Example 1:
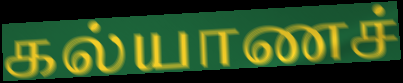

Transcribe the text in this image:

கல்யாணச்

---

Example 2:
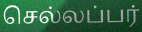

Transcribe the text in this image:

செல்லப்பர்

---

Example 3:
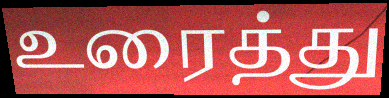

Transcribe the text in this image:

உரைத்து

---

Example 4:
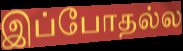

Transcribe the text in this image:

இப்போதல்ல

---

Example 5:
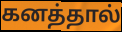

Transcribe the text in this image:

கனத்தால்